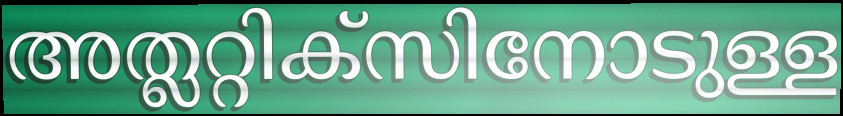
അത്ലറ്റിക്സിനോടുള്ള